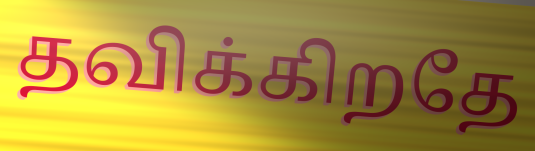
தவிக்கிறதே